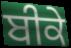
ਬੀਕੇ